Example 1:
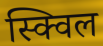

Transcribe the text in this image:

स्क्विल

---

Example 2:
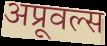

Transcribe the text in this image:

अप्रूवल्स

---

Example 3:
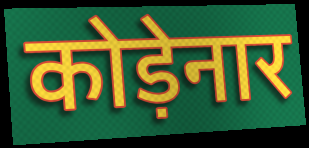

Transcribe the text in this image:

कोड़ेनार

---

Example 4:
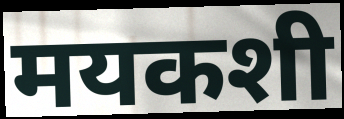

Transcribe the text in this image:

मयकशी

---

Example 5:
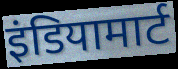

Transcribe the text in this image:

इंडियामार्ट